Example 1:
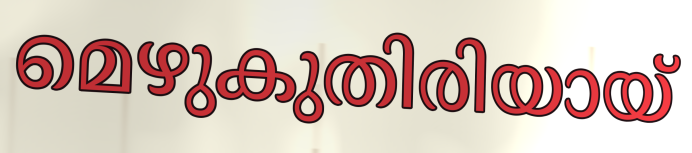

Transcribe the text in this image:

മെഴുകുതിരിയായ്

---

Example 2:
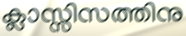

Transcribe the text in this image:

ക്ലാസ്സിസത്തിനു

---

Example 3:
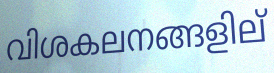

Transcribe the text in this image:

വിശകലനങ്ങളില്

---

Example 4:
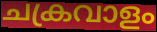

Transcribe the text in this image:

ചക്രവാളം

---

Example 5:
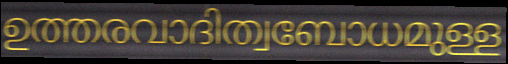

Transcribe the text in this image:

ഉത്തരവാദിത്വബോധമുള്ള